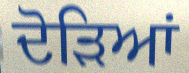
ਦੋੜਿਆਂ